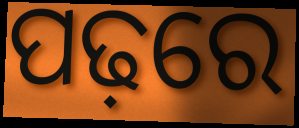
ପଢ଼ରେ